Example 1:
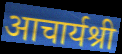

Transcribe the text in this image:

आचार्यश्री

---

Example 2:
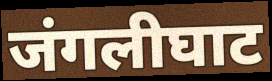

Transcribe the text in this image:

जंगलीघाट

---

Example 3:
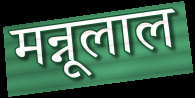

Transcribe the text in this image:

मन्नूलाल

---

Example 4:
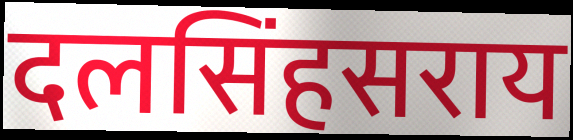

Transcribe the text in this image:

दलसिंहसराय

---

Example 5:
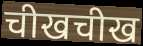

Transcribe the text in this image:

चीखचीख